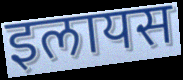
इलायस